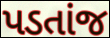
પડતાંજ